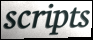
scripts